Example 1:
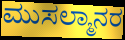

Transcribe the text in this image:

ಮುಸಲ್ಮಾನರ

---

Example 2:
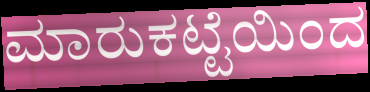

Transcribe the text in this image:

ಮಾರುಕಟ್ಟೆಯಿಂದ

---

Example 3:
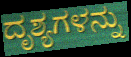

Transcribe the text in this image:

ದೃಶ್ಯಗಳನ್ನು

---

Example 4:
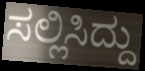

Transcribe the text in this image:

ಸಲ್ಲಿಸಿದ್ದು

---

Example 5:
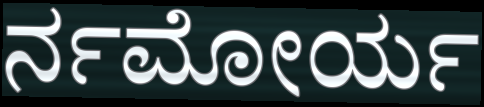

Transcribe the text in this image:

ರ್ನಮೋರ್ಯ